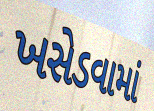
ખસેડવામાં